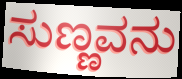
ಸುಣ್ಣವನು